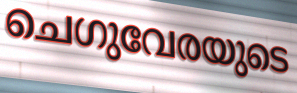
ചെഗുവേരയുടെ